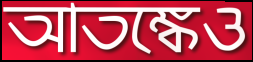
আতঙ্কেও